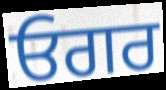
ਓਗਰ